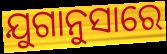
ଯୁଗାନୁସାରେ